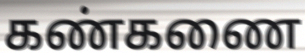
கண்கணை